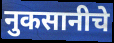
नुकसानीचे